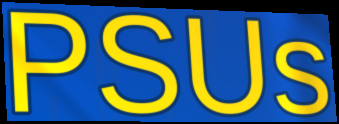
PSUs